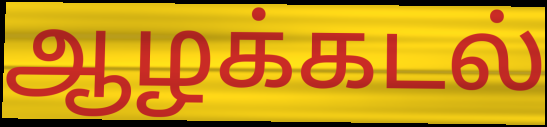
ஆழக்கடல்